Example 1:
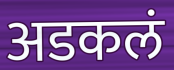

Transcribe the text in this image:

अडकलं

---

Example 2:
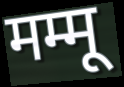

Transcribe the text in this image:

मम्मू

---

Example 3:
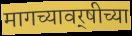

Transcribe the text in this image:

मागच्यावर्षीच्या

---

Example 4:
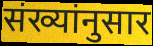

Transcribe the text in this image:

संख्यांनुसार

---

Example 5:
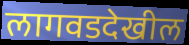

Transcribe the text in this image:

लागवडदेखील